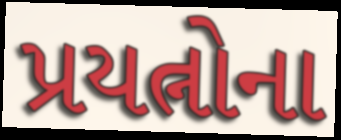
પ્રયત્નોના